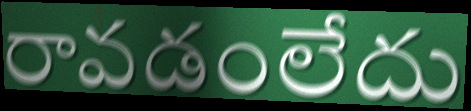
రావడంలేదు